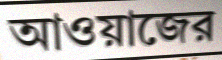
আওয়াজের